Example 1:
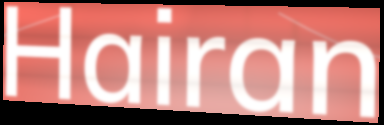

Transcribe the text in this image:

Hairan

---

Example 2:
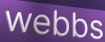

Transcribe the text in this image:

webbs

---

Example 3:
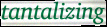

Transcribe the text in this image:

tantalizing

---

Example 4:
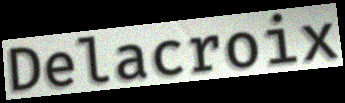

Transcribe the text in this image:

Delacroix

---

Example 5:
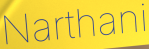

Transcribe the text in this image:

Narthani